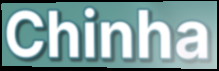
Chinha